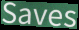
Saves